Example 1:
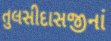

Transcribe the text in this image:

તુલસીદાસજીનાં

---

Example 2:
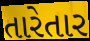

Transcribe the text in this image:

તારેતાર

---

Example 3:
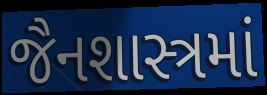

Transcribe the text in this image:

જૈનશાસ્ત્રમાં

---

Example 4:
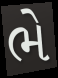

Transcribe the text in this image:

ભે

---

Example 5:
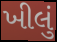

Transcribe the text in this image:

ખીલું